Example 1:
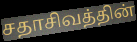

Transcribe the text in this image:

சதாசிவத்தின்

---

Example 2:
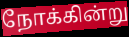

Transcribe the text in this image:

நோக்கின்று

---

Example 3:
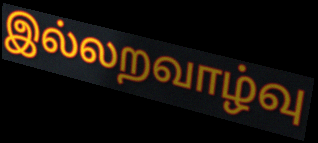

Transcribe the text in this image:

இல்லறவாழ்வு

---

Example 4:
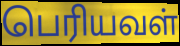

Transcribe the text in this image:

பெரியவள்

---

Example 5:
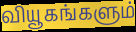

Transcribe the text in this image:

வியூகங்களும்